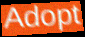
Adopt